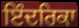
ਇੰਦਰਿਕਾ